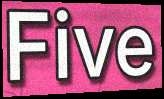
Five